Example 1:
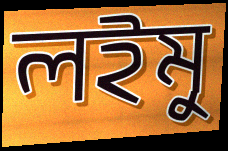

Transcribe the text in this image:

লইমু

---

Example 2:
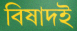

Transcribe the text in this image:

বিষাদই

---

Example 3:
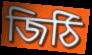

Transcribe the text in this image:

জিঠি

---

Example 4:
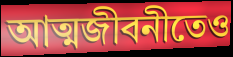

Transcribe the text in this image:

আত্মজীবনীতেও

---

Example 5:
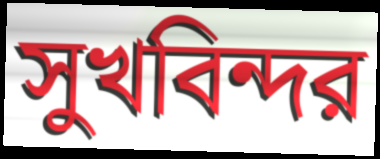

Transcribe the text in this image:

সুখবিন্দর